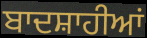
ਬਾਦਸ਼ਾਹੀਆਂ